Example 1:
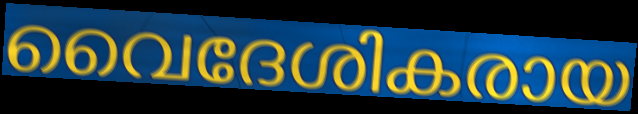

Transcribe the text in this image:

വൈദേശികരായ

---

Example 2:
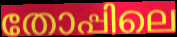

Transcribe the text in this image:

തോപ്പിലെ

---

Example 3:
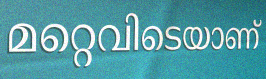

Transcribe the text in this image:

മറ്റെവിടെയാണ്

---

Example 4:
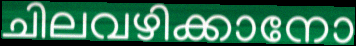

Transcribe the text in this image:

ചിലവഴിക്കാനോ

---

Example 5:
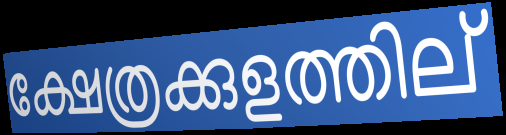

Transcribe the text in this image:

ക്ഷേത്രക്കുളത്തില്